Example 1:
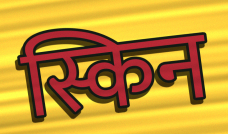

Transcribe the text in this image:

स्किन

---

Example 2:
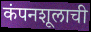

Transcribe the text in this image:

कंपनशूलाची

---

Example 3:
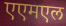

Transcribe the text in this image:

एएमएल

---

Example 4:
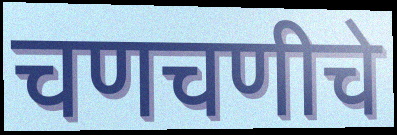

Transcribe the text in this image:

चणचणीचे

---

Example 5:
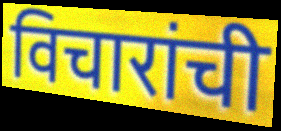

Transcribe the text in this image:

विचारांची